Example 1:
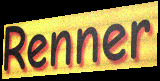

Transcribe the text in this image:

Renner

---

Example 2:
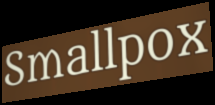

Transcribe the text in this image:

Smallpox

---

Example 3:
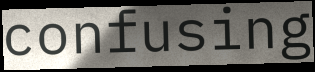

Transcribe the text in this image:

confusing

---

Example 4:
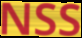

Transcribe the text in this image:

NSS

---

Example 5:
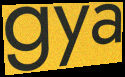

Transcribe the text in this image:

gya